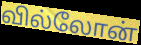
வில்லோன்